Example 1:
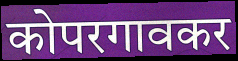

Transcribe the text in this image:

कोपरगावकर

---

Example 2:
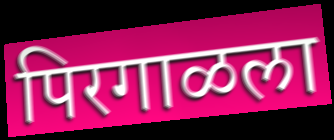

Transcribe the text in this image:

पिरगाळला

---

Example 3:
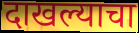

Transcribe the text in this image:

दाखल्याचा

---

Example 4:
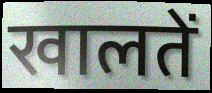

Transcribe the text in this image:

खालतें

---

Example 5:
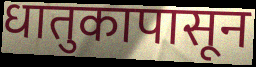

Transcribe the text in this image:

धातुकापासून